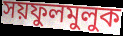
সয়ফুলমুলুক